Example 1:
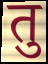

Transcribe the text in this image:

तु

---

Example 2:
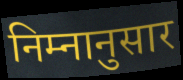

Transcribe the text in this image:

निम्नानुसार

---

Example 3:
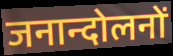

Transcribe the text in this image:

जनान्दोलनों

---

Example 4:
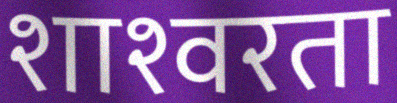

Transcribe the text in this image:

शाश्वरता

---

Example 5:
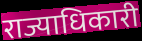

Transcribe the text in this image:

राज्याधिकारी